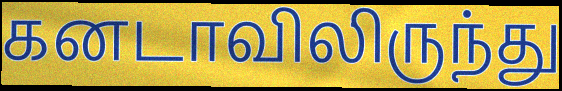
கனடாவிலிருந்து